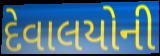
દેવાલયોની